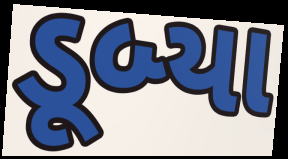
ડૂબ્યા